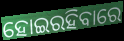
ହୋଇରହିବାରେ